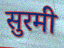
सुरमी